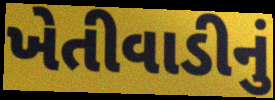
ખેતીવાડીનું